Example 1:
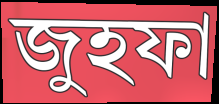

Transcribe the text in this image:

জুহফা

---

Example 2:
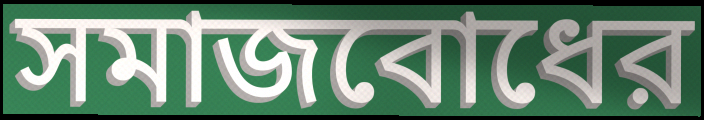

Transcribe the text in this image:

সমাজবোধের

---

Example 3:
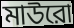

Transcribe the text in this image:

মাউরো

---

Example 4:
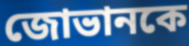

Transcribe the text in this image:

জোভানকে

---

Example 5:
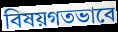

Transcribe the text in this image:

বিষয়গতভাবে